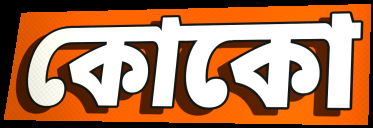
কোকো